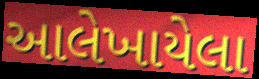
આલેખાયેલા